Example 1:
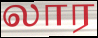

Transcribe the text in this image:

லார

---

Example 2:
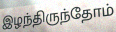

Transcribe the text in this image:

இழந்திருந்தோம்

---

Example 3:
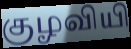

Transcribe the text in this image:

குழவியி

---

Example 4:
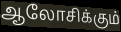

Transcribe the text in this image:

ஆலோசிக்கும்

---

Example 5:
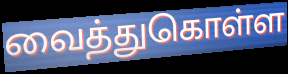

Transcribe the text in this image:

வைத்துகொள்ள